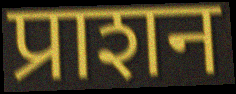
प्राशन